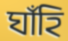
ঘাঁহি